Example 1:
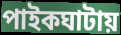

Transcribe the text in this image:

পাইকঘাটায়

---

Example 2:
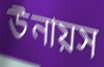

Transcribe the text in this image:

উনায়স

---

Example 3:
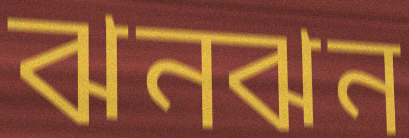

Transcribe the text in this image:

ঝনঝন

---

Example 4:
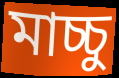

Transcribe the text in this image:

মাচ্চু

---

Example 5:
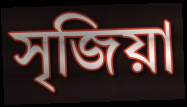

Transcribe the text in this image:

সৃজিয়া